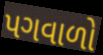
પગવાળો